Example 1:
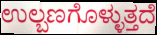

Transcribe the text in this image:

ಉಲ್ಬಣಗೊಳ್ಳುತ್ತದೆ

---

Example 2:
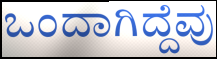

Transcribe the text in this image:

ಒಂದಾಗಿದ್ದೆವು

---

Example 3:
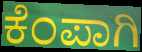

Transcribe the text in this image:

ಕೆಂಪಾಗಿ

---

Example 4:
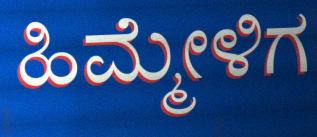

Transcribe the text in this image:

ಹಿಮ್ಮೇಳಿಗ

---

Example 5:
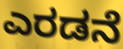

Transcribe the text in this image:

ಎರಡನೆ